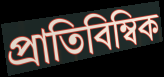
প্রাতিবিম্বিক